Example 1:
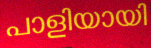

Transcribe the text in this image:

പാളിയായി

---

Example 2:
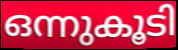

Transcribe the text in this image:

ഒന്നുകൂടി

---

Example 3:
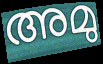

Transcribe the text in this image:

അമു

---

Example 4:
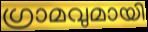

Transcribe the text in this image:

ഗ്രാമവുമായി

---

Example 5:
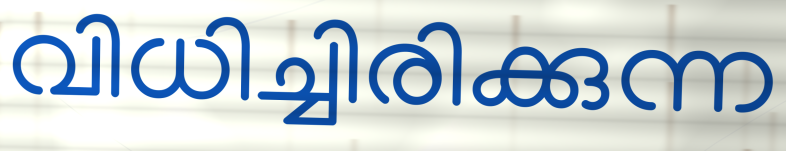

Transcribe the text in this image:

വിധിച്ചിരിക്കുന്ന